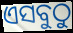
ଏସବୁଠୁ